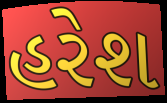
હરેશ